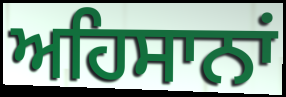
ਅਹਿਸਾਨਾਂ